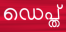
ഡെപ്ത്